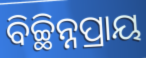
ବିଚ୍ଛିନ୍ନପ୍ରାୟ